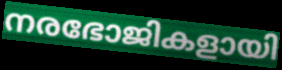
നരഭോജികളായി